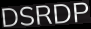
DSRDP